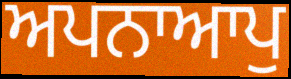
ਅਪਨਾਆਪੁ